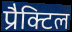
प्रैक्टिल